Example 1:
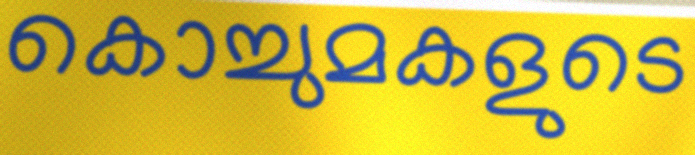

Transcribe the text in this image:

കൊച്ചുമകളുടെ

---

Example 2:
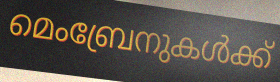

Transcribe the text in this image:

മെംബ്രേനുകൾക്ക്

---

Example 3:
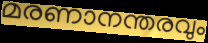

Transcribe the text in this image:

മരണാനന്തരവും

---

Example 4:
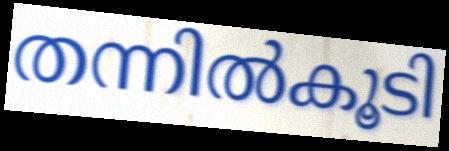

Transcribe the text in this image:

തന്നിൽകൂടി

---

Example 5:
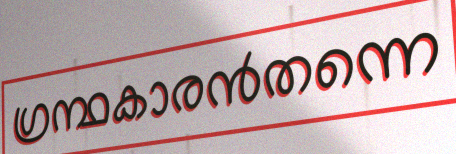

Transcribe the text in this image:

ഗ്രന്ഥകാരൻതന്നെ